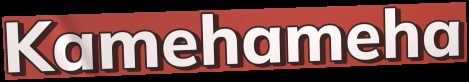
Kamehameha